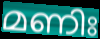
മണിഃ